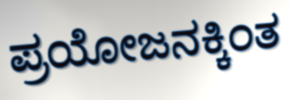
ಪ್ರಯೋಜನಕ್ಕಿಂತ